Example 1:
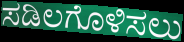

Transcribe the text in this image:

ಸಡಿಲಗೊಳಿಸಲು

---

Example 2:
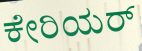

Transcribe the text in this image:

ಕೇರಿಯರ್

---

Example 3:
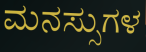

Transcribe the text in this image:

ಮನಸ್ಸುಗಳ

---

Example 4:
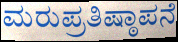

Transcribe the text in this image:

ಮರುಪ್ರತಿಷ್ಠಾಪನೆ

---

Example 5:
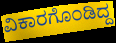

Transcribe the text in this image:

ವಿಕಾರಗೊಂಡಿದ್ದ